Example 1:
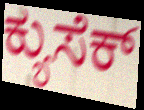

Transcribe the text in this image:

ಕ್ಯುಸೆಕ್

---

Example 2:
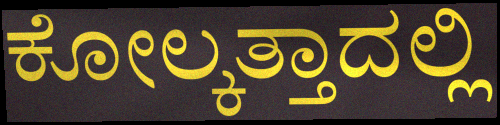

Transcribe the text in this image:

ಕೋಲ್ಕತ್ತಾದಲ್ಲಿ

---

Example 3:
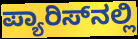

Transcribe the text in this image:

ಪ್ಯಾರಿಸ್‌ನಲ್ಲಿ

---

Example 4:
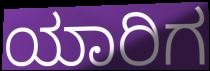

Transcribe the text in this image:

ಯಾರಿಗ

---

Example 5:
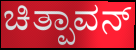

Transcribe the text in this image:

ಚಿತ್ಪಾವನ್